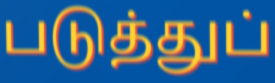
படுத்துப்